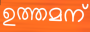
ഉത്തമന്